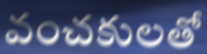
వంచకులతో